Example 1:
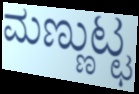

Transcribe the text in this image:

ಮಣ್ಣುಟ್ಟ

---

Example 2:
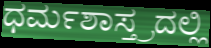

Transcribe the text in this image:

ಧರ್ಮಶಾಸ್ತ್ರದಲ್ಲಿ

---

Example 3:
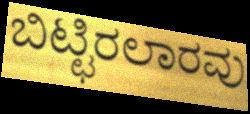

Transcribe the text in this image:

ಬಿಟ್ಟಿರಲಾರವು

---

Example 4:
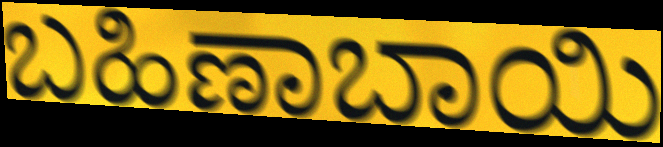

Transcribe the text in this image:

ಬಹಿಣಾಬಾಯಿ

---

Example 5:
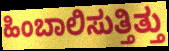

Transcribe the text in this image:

ಹಿಂಬಾಲಿಸುತ್ತಿತ್ತು